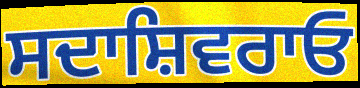
ਸਦਾਸ਼ਿਵਰਾਓ